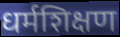
धर्मशिक्षण